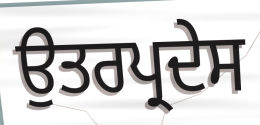
ਉਤਰਪ੍ਰਦੇਸ